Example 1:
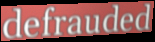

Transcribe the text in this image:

defrauded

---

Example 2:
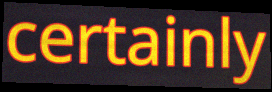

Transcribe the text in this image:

certainly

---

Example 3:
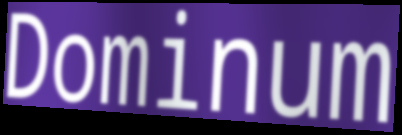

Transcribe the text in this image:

Dominum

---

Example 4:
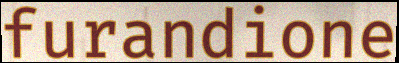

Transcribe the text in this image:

furandione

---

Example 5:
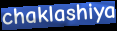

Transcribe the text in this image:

chaklashiya